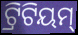
ଟ୍ରିଟିୟମ୍